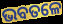
ଭବତଳେ